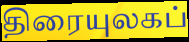
திரையுலகப்